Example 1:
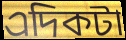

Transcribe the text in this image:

এদিকটা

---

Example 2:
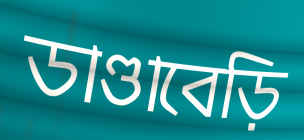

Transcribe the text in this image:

ডাণ্ডাবেড়ি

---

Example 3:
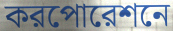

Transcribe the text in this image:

করপোরেশনে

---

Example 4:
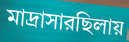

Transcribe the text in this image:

মাদ্রাসারছিলায়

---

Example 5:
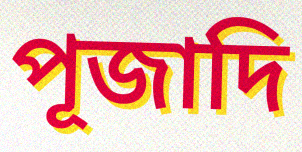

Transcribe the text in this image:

পূজাদি